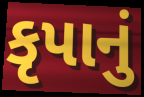
કૃપાનું